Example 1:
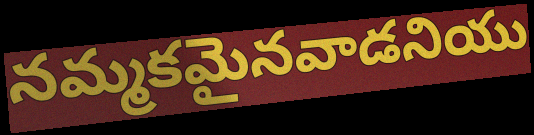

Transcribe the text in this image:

నమ్మకమైనవాడనియు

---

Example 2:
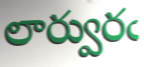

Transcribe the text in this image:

లార్వురఁ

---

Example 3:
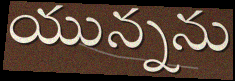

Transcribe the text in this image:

యున్నను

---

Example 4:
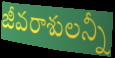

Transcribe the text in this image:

జీవరాశులన్నీ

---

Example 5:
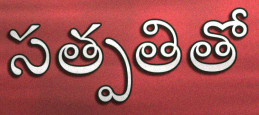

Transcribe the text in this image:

సత్పతితో